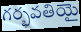
గర్భవతియై